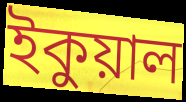
ইকুয়াল